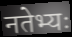
नतेभ्यः